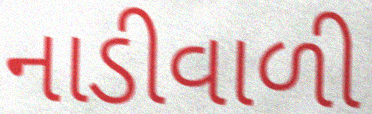
નાડીવાળી